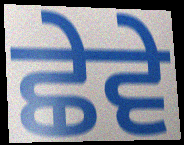
ਛੇਵੇ